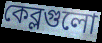
কেব্লগুলো